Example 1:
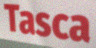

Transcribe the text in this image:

Tasca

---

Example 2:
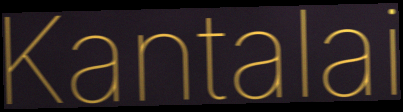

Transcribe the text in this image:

Kantalai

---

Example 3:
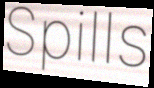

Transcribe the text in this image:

Spills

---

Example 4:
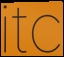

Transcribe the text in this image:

itc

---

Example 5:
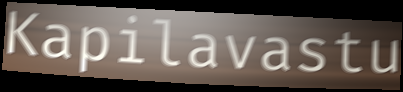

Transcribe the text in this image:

Kapilavastu